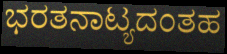
ಭರತನಾಟ್ಯದಂತಹ